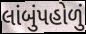
લાંબુંપહોળું